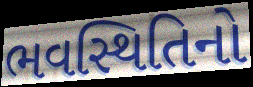
ભવસ્થિતિનો